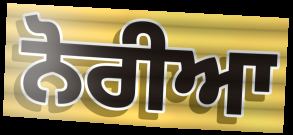
ਨੋਰੀਆ